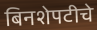
बिनशेपटीचे